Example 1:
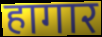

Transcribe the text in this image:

हागार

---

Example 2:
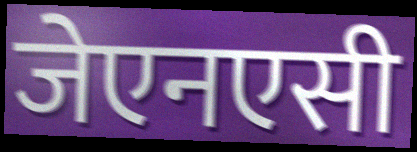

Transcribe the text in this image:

जेएनएसी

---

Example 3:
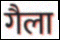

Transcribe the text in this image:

गैला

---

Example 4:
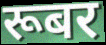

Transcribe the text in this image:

रूबर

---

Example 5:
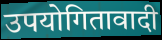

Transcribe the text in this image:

उपयोगितावादी